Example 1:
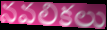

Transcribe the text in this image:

నవలికలు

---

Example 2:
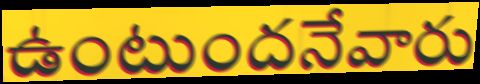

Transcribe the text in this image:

ఉంటుందనేవారు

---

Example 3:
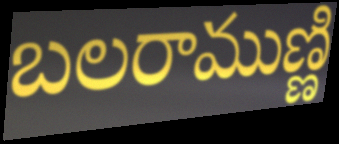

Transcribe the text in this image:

బలరాముణ్ణి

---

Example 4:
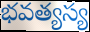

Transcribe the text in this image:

భవత్యస్య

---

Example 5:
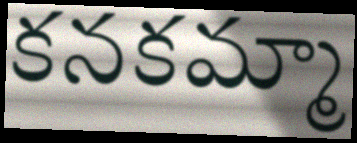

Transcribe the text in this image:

కనకమ్మా